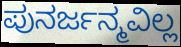
ಪುನರ್ಜನ್ಮವಿಲ್ಲ